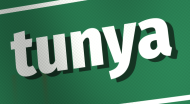
tunya